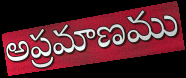
అప్రమాణము